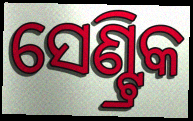
ସେଣ୍ଟ୍ରିକ